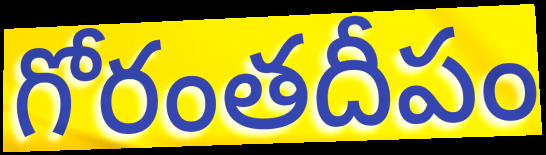
గోరంతదీపం